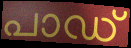
പാഡ്